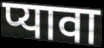
प्यावा